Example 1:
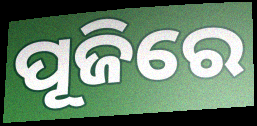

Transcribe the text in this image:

ପୂଜିରେ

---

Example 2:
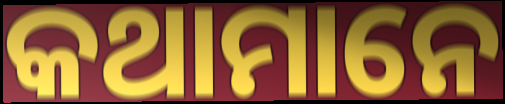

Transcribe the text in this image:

କଥାମାନେ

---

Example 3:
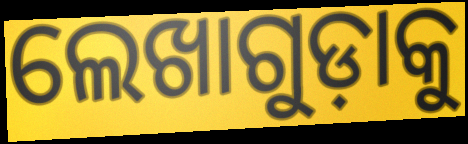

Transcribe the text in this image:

ଲେଖାଗୁଡ଼ାକୁ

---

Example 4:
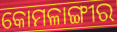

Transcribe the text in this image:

କୋମଳାଙ୍ଗୀର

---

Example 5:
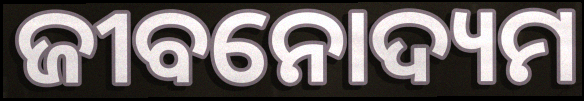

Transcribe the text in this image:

ଜୀବନୋଦ୍ୟମ